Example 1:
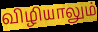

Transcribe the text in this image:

விழியாலும்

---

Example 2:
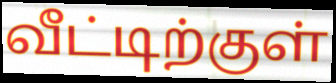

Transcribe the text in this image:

வீட்டிற்குள்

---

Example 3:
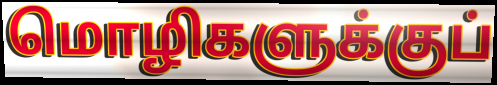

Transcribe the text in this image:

மொழிகளுக்குப்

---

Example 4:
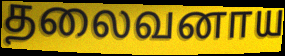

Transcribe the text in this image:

தலைவனாய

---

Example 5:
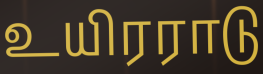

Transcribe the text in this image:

உயிரராடு